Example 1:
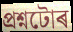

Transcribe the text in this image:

প্ৰশ্নটোৰ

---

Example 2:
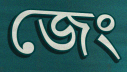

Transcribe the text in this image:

জেং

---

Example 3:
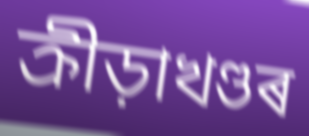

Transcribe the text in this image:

ক্ৰীড়াখণ্ডৰ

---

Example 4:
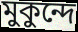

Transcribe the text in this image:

মুকুন্দে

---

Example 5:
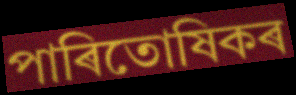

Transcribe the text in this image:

পাৰিতোষিকৰ